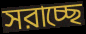
সরাচ্ছে